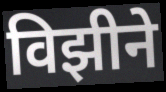
विझीने